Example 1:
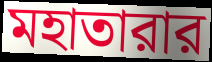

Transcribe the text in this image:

মহাতারার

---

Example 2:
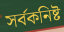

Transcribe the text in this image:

সর্বকনিষ্ট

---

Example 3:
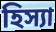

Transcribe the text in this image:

হিস্যা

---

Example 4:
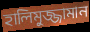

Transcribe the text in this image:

হালিমুজ্জামান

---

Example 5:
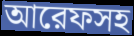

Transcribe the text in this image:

আরেফসহ